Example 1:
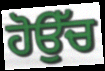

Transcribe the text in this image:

ਹੋਉੱਚ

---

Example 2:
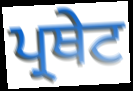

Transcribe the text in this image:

ਪ੍ਰਥੇਟ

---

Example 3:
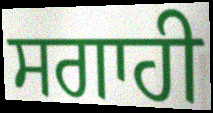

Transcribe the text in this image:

ਸਗਾਹੀ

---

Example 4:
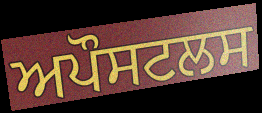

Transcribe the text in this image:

ਅਪੌਸਟਲਸ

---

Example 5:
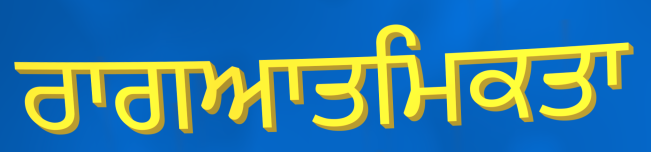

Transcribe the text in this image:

ਰਾਗਆਤਮਿਕਤਾ